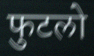
फुटलो